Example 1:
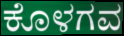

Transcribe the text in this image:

ಕೊಳಗವ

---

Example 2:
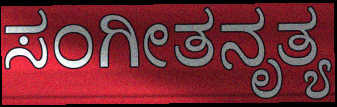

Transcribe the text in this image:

ಸಂಗೀತನೃತ್ಯ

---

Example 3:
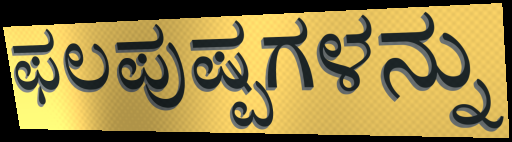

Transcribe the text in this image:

ಫಲಪುಷ್ಪಗಳನ್ನು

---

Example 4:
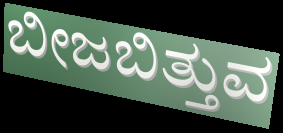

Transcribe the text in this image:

ಬೀಜಬಿತ್ತುವ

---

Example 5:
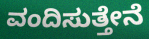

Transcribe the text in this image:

ವಂದಿಸುತ್ತೇನೆ